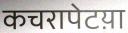
कचरापेटय़ा